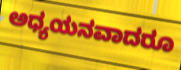
ಅಧ್ಯಯನವಾದರೂ